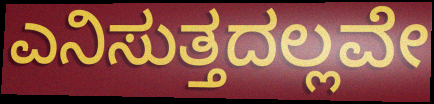
ಎನಿಸುತ್ತದಲ್ಲವೇ